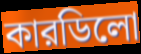
কারডিলো